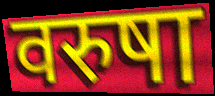
वरुषा